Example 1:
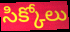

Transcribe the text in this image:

సిక్కోలు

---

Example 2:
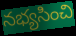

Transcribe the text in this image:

నభ్యసించి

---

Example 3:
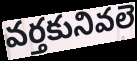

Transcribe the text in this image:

వర్తకునివలె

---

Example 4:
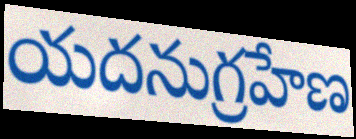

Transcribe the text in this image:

యదనుగ్రహేణ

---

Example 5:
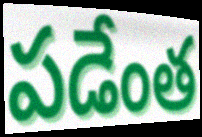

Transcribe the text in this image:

పడేంత